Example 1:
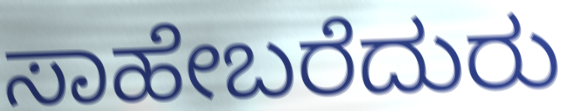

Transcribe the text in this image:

ಸಾಹೇಬರೆದುರು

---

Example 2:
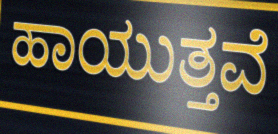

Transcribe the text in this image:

ಹಾಯುತ್ತವೆ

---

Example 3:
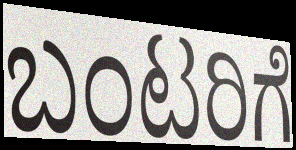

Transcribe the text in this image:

ಬಂಟರಿಗೆ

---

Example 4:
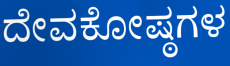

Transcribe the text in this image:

ದೇವಕೋಷ್ಠಗಳ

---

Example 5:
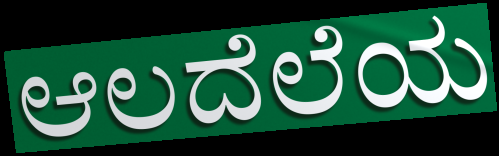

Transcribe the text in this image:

ಆಲದೆಲೆಯ